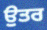
ਉੁਤਰ